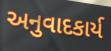
અનુવાદકાર્ય